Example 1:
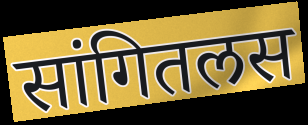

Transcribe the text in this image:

सांगितलस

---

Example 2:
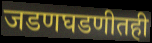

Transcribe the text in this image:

जडणघडणीतही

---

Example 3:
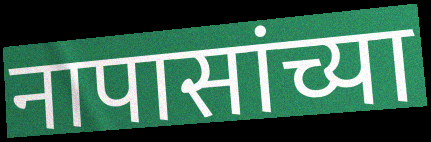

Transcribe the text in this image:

नापासांच्या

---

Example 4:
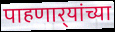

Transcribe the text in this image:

पाहणार्‍यांच्या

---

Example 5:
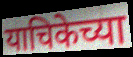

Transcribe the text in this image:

याचिकेच्या